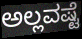
ಅಲ್ಲವಷ್ಟೆ